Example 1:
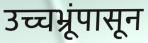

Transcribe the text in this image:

उच्चभ्रूंपासून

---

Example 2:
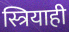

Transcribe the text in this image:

स्त्रियाही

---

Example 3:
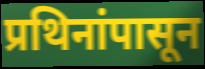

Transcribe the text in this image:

प्रथिनांपासून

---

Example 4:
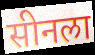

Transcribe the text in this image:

सीनला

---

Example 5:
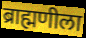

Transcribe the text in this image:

ब्राह्मणीला